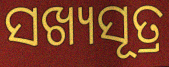
ସଖ୍ୟସୂତ୍ର